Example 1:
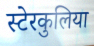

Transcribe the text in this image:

स्टेरकुलिया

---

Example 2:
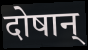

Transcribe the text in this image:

दोषान्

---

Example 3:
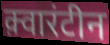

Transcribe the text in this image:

क़्वारंटीन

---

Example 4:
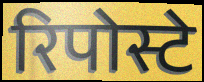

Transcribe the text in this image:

रिपोस्टे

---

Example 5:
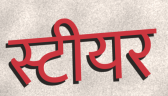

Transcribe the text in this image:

स्टीयर